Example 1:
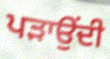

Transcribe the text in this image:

ਪੜਾਉਂਦੀ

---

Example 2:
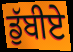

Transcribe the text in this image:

ਡੁੱਬੀਏ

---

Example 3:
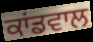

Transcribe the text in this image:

ਕਾਂਡਵਾਲ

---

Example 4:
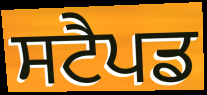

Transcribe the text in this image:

ਸਟੈਪਡ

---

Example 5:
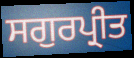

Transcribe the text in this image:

ਸਗੁਰਪ੍ਰੀਤ